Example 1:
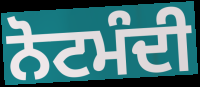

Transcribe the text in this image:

ਨੋਟਮੰਦੀ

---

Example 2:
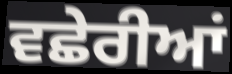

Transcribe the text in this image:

ਵਛੇਰੀਆਂ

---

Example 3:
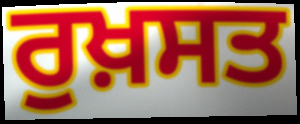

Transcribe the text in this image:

ਰੁਖ਼ਸਤ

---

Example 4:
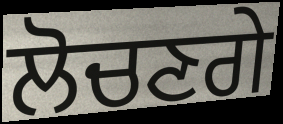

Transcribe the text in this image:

ਲੋਚਣਗੇ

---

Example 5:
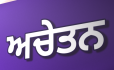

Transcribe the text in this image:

ਅਚੇਤਨ